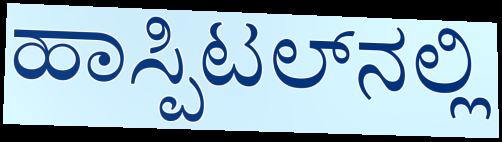
ಹಾಸ್ಪಿಟಲ್‌ನಲ್ಲಿ